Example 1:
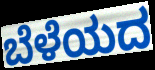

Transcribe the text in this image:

ಬೆಳೆಯದ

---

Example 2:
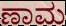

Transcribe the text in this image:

ಣಾಮ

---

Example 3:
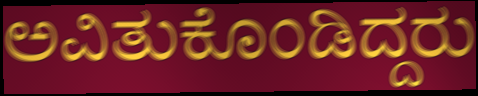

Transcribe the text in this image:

ಅವಿತುಕೊಂಡಿದ್ದರು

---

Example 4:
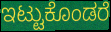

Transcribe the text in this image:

ಇಟ್ಟುಕೊಂಡರೆ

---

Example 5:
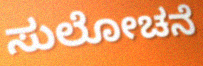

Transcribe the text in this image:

ಸುಲೋಚನೆ